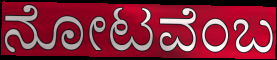
ನೋಟವೆಂಬ